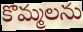
కొమ్మలను